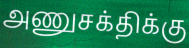
அணுசக்திக்கு